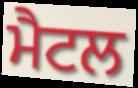
ਮੈਟਲ